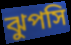
ঝুপসি